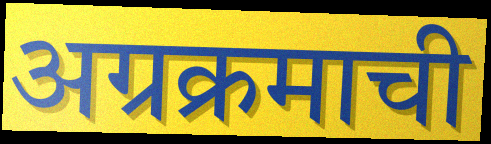
अग्रक्रमाची